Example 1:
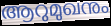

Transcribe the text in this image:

ആറുമുഖനും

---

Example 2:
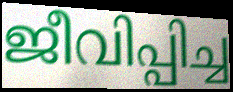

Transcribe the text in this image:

ജീവിപ്പിച്ച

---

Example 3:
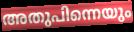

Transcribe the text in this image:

അതുപിന്നെയും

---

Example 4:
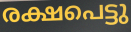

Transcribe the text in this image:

രക്ഷപെട്ടു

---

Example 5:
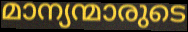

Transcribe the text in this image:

മാന്യന്മാരുടെ